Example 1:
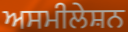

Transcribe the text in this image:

ਅਸਮੀਲੇਸ਼ਨ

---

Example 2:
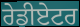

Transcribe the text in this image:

ਰੇਡੀਏਟਰ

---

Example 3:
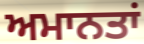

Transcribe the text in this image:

ਅਮਾਨਤਾਂ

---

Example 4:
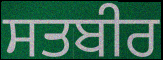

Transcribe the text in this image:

ਸਤਬੀਰ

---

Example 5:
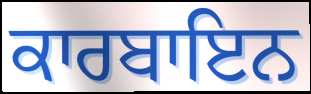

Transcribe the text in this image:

ਕਾਰਬਾਇਨ